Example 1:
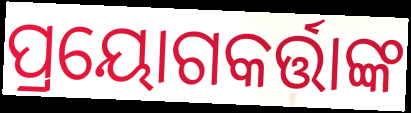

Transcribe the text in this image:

ପ୍ରୟୋଗକର୍ତ୍ତାଙ୍କ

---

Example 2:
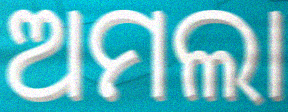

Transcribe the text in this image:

ଅମଲା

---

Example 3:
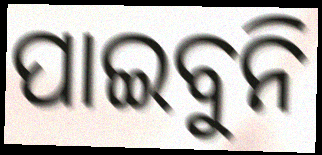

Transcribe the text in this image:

ପାଇବୁନି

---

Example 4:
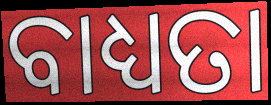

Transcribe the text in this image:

ବାଧ୍ୟତା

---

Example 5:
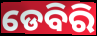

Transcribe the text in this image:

ଡେବିରି